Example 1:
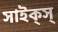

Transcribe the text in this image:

সাইক্‌স্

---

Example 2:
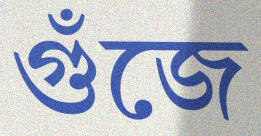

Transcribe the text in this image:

গুঁজে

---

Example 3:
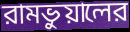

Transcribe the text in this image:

রামভুয়ালের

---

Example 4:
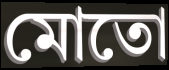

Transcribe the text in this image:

মোতো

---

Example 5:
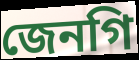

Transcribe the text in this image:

জেনগি